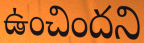
ఉంచిందని